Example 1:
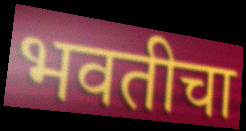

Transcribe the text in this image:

भवतीचा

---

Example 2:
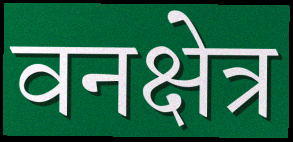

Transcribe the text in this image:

वनक्षेत्र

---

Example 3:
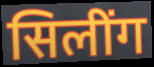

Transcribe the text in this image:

सिलींग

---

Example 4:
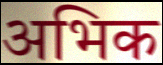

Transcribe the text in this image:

अभिक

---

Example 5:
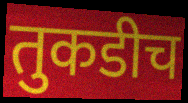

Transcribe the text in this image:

तुकडीच